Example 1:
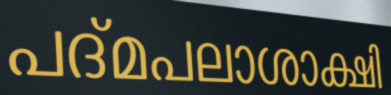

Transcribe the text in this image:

പദ്മപലാശാക്ഷി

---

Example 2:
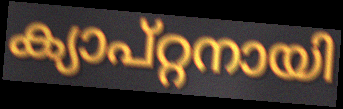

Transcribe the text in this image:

ക്യാപ്റ്റനായി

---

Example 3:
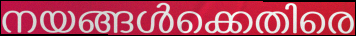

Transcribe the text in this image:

നയങ്ങൾക്കെതിരെ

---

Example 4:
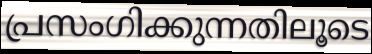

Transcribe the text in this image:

പ്രസംഗിക്കുന്നതിലൂടെ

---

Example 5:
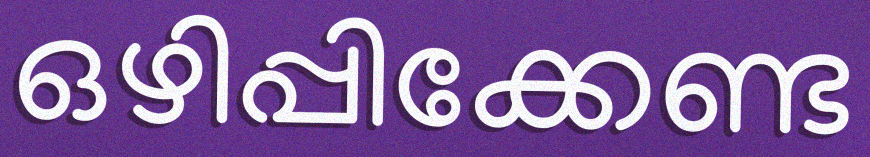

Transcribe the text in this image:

ഒഴിപ്പിക്കേണ്ട